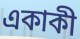
একাকী